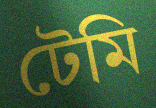
টেমি